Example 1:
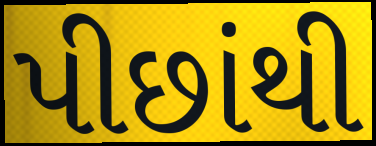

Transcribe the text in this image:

પીછાંથી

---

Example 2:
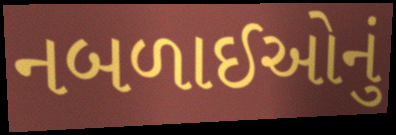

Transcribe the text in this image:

નબળાઈઓનું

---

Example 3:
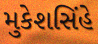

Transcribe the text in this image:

મુકેશસિંહે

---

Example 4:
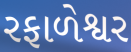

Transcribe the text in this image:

રફાળેશ્વર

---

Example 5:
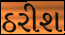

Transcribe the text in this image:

ઠરીશ